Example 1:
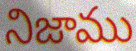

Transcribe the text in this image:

నిజాము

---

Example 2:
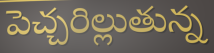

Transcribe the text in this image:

పెచ్చరిల్లుతున్న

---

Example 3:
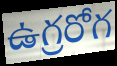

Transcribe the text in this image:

ఉగ్రరోగ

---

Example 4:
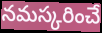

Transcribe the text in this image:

నమస్కరించే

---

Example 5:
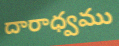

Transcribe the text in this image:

దారాధ్వము